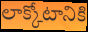
లాక్కోటానికి